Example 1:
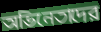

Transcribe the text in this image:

অভিনেতাদের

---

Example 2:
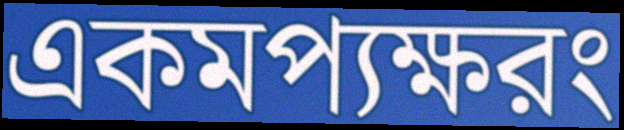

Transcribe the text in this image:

একমপ্যক্ষরং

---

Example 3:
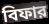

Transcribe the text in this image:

বিফার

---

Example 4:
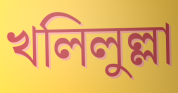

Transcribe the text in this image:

খলিলুল্লা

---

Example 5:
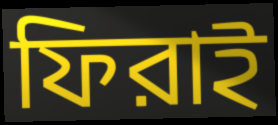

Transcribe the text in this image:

ফিরাই